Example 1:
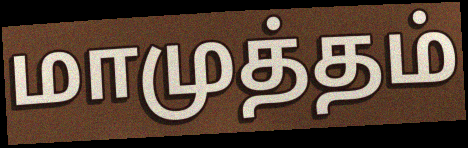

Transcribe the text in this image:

மாமுத்தம்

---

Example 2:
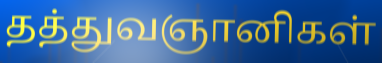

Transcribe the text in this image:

தத்துவஞானிகள்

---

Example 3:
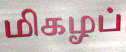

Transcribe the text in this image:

மிகழப்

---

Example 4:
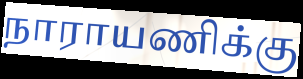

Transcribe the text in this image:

நாராயணிக்கு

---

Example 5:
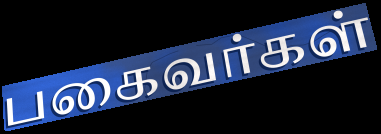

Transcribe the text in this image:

பகைவர்கள்